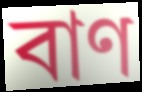
বাণ